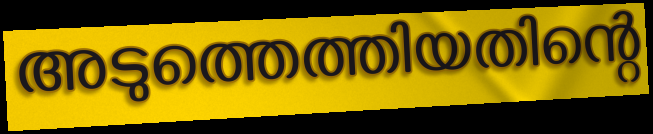
അടുത്തെത്തിയതിന്റെ